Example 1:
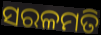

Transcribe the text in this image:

ସରଳମତି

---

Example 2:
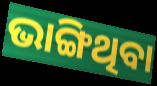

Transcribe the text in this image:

ଭାଙ୍ଗିଥିବା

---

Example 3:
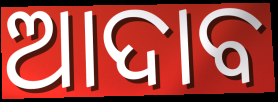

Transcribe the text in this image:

ଆଦାବ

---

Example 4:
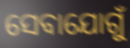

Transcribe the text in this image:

ସେବାଯୋଗୁଁ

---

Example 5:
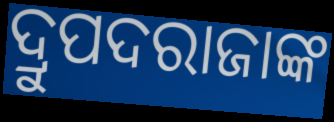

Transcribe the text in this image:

ଦ୍ରୁପଦରାଜାଙ୍କ